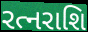
રત્નરાશિ